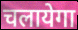
चलायेगा